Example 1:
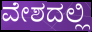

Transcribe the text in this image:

ವೇಶದಲ್ಲಿ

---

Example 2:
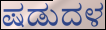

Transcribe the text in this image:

ಷಡುದಳ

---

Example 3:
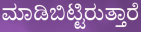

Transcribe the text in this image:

ಮಾಡಿಬಿಟ್ಟಿರುತ್ತಾರೆ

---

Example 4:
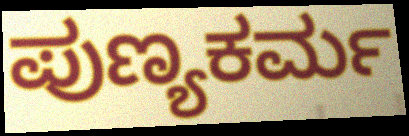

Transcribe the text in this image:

ಪುಣ್ಯಕರ್ಮ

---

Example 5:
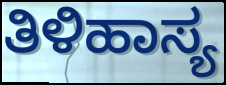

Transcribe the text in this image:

ತಿಳಿಹಾಸ್ಯ